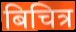
बिचित्र